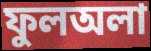
ফুলঅলা